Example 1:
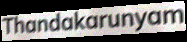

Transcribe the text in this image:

Thandakarunyam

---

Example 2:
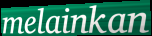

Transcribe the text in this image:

melainkan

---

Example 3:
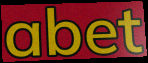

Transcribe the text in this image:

abet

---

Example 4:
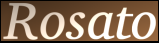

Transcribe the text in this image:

Rosato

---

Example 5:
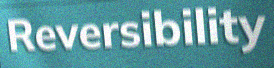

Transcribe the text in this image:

Reversibility